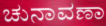
ಚುನಾವಣಾ